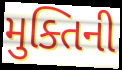
મુક્તિની